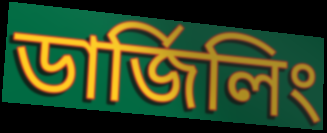
ডার্জিলিং